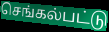
செங்கல்பட்டு